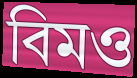
বিমও